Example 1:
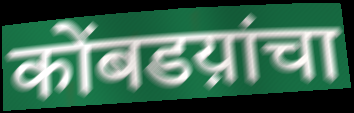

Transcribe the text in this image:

कोंबडय़ांचा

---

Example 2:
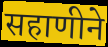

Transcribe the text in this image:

सहाणीने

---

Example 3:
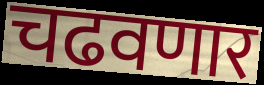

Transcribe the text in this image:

चढवणार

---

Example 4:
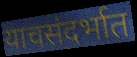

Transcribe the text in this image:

याचसंदर्भात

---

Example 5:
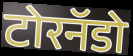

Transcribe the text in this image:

टोरनॅडो